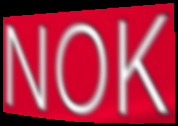
NOK